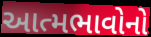
આત્મભાવોનો